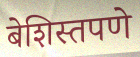
बेशिस्तपणे